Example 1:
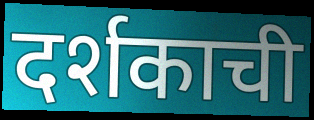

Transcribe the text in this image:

दर्शकाची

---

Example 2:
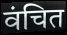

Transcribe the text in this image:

वंचित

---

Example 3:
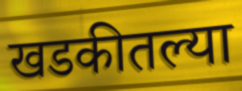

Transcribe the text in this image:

खडकीतल्या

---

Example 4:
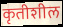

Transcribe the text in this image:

कृतीशील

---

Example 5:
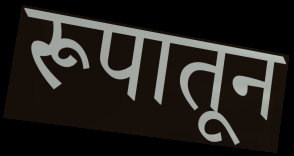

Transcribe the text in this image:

रूपातून